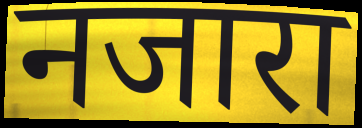
नजारा